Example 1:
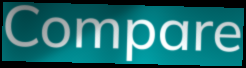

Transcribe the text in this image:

Compare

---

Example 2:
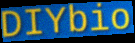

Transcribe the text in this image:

DIYbio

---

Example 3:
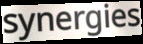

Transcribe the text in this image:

synergies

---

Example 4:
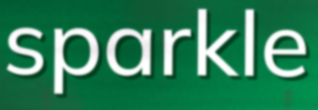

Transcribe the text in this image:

sparkle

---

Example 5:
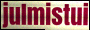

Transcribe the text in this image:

julmistui